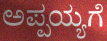
ಅಪ್ಪಯ್ಯಗೆ